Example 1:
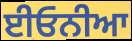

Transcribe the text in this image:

ਈਓਨੀਆ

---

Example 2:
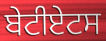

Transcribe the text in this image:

ਬੇਟੀਏਟਸ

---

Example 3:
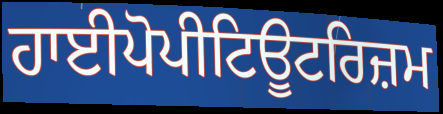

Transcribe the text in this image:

ਹਾਈਪੋਪੀਟਿਊਟਰਿਜ਼ਮ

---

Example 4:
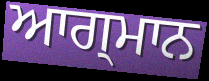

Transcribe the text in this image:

ਆਗ੍ਮਾਨ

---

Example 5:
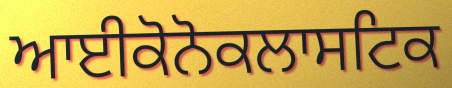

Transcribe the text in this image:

ਆਈਕੋਨੋਕਲਾਸਟਿਕ